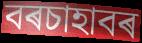
বৰচাহাবৰ